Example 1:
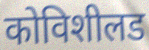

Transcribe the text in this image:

कोविशीलड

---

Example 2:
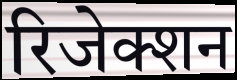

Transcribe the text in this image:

रिजेक्शन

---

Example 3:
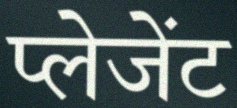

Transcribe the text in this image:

प्लेजेंट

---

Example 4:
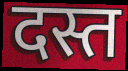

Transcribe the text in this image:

दस्त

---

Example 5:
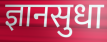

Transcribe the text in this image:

ज्ञानसुधा